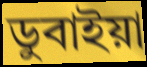
ডুবাইয়া